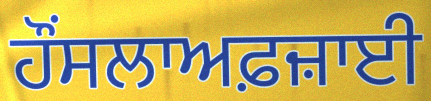
ਹੌਂਸਲਾਅਫ਼ਜ਼ਾਈ